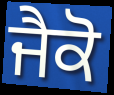
ਜੈਕੋ